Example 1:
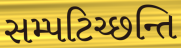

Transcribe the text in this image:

સમ્પટિચ્છન્તિ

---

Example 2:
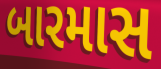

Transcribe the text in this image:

બારમાસ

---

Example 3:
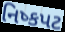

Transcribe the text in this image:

નિષ્કપટ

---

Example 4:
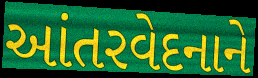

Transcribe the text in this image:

આંતરવેદનાને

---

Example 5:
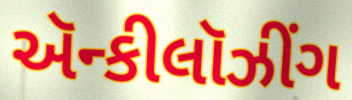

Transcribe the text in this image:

ઍન્કીલૉઝીંગ